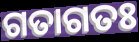
ଗତାଗତଃ